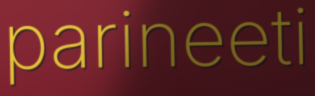
parineeti